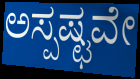
ಅಸ್ಪಷ್ಟವೇ